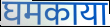
घमकाया